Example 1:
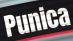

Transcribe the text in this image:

Punica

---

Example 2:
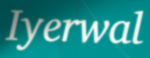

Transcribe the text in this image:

Iyerwal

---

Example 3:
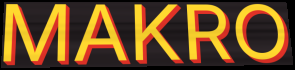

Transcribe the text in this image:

MAKRO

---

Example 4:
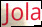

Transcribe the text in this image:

Jola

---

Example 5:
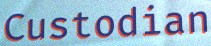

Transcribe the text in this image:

Custodian